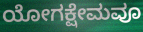
ಯೋಗಕ್ಷೇಮವೂ